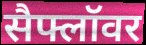
सैफ्लॉवर